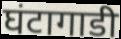
घंटागाडी